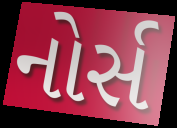
નોર્સ